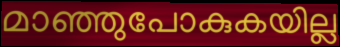
മാഞ്ഞുപോകുകയില്ല